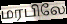
மரபிலே